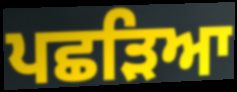
ਪਛੜਿਆ